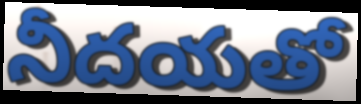
నీదయతో